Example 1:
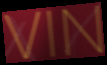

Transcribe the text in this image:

VIN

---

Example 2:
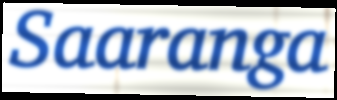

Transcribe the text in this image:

Saaranga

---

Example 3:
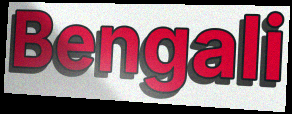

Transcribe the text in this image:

Bengali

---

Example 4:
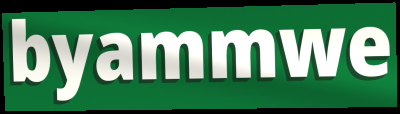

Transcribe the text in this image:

byammwe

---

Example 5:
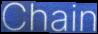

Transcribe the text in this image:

Chain